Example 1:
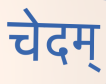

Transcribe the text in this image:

चेदम्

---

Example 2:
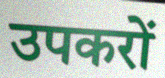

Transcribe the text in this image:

उपकरों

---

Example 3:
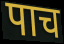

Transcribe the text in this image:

पाच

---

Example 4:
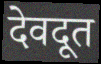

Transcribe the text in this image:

देवदूत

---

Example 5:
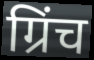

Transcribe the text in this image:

ग्रिंच